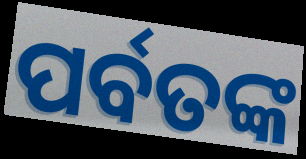
ପର୍ବତଙ୍କ